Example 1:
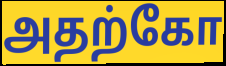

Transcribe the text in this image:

அதற்கோ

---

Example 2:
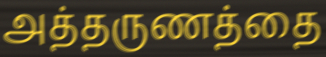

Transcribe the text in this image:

அத்தருணத்தை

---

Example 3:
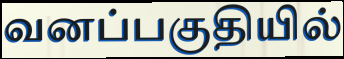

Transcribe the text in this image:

வனப்பகுதியில்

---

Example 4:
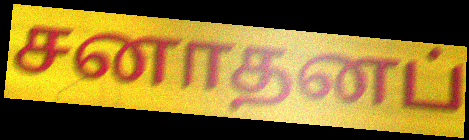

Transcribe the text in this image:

சனாதனப்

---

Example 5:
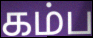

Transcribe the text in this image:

கம்ப